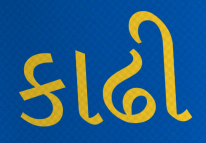
કાઢી